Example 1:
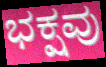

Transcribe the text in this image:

ಭಕ್ಷವು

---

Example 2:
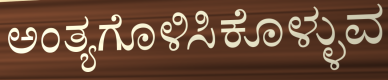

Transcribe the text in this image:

ಅಂತ್ಯಗೊಳಿಸಿಕೊಳ್ಳುವ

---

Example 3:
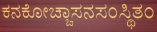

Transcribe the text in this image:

ಕನಕೋಚ್ಚಾಸನಸಂಸ್ಥಿತಂ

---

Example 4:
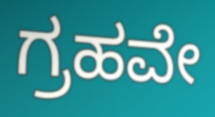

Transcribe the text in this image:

ಗ್ರಹವೇ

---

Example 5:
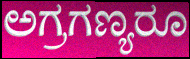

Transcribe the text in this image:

ಅಗ್ರಗಣ್ಯರೂ